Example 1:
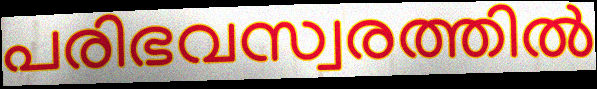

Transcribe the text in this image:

പരിഭവസ്വരത്തിൽ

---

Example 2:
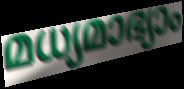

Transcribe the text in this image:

മധ്യമാഭ്യാം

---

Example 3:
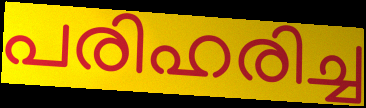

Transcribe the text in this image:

പരിഹരിച്ച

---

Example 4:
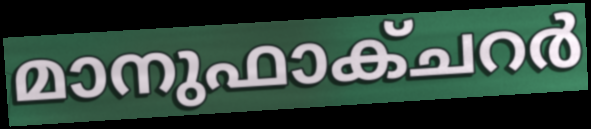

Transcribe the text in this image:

മാനുഫാക്ചറർ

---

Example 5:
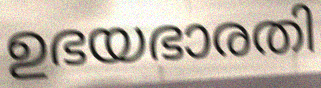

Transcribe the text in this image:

ഉഭയഭാരതി